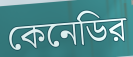
কেনেডির